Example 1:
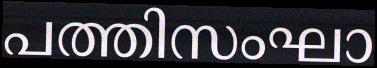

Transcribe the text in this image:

പത്തിസംഘാ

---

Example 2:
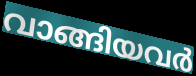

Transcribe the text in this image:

വാങ്ങിയവർ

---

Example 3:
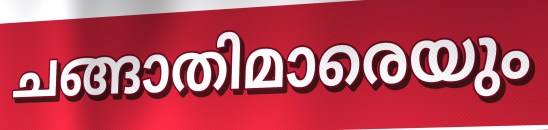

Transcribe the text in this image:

ചങ്ങാതിമാരെയും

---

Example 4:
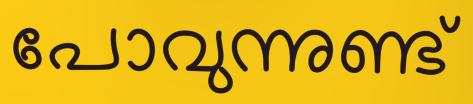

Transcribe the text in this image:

പോവുന്നുണ്ട്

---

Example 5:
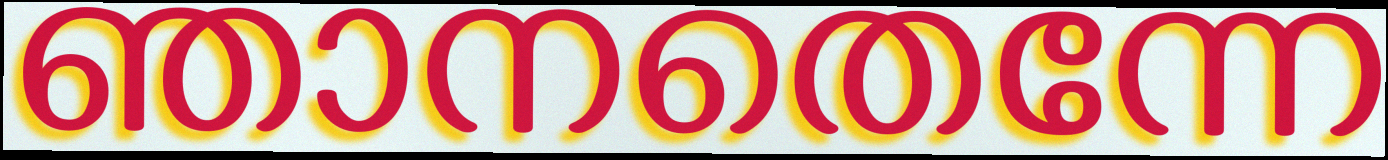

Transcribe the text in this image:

ഞാനതെന്നേ